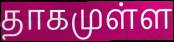
தாகமுள்ள